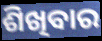
ଶିଖିବାର